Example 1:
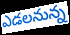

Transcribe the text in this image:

ఎడలనున్న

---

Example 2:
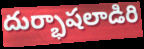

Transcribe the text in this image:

దుర్భాషలాడిరి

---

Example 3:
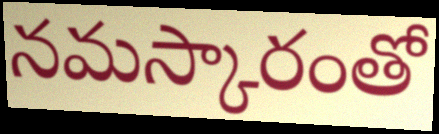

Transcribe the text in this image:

నమస్కారంతో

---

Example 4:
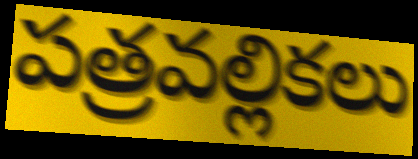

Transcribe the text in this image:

పత్రవల్లికలు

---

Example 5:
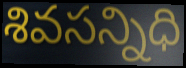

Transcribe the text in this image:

శివసన్నిధి